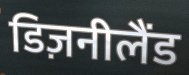
डिज़नीलैंड